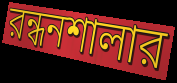
রন্ধনশালার